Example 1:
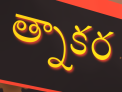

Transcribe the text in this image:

త్నాకర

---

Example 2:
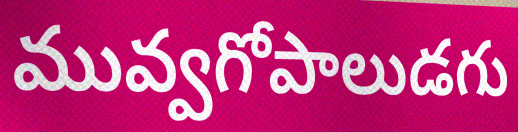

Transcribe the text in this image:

మువ్వగోపాలుడగు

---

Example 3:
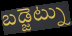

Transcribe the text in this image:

బడ్జెట్ను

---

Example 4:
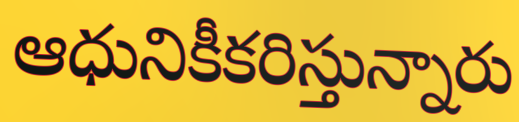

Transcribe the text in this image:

ఆధునికీకరిస్తున్నారు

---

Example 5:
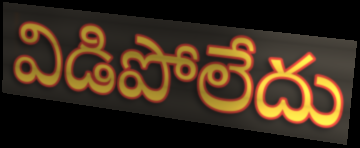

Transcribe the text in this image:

విడిపోలేదు